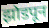
झोडपून